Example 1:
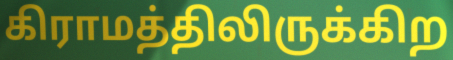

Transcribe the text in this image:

கிராமத்திலிருக்கிற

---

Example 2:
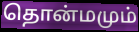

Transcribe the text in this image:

தொன்மமும்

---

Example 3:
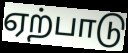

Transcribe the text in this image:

ஏற்பாடு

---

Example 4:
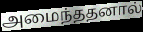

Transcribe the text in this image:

அமைந்ததனால்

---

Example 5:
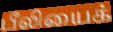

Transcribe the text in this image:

பீலியைக்